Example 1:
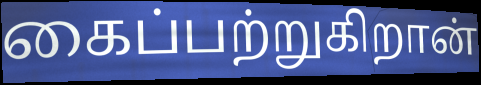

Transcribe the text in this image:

கைப்பற்றுகிறான்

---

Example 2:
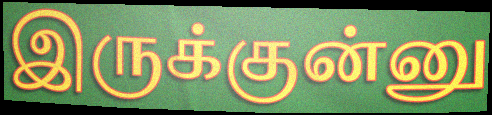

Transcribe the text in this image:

இருக்குன்னு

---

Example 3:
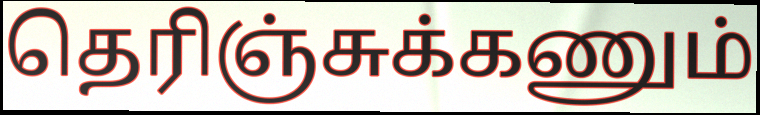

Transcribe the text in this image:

தெரிஞ்சுக்கணும்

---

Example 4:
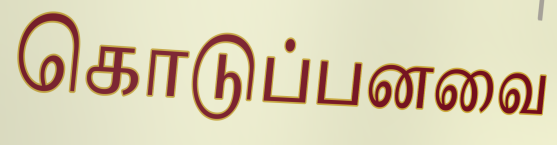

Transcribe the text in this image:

கொடுப்பனவை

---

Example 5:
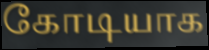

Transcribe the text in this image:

கோடியாக